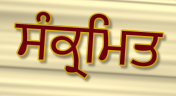
ਸੰਕ੍ਰਮਿਤ